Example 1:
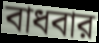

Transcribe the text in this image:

বাধবার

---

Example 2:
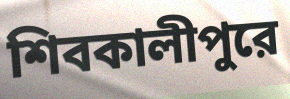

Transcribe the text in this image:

শিবকালীপুরে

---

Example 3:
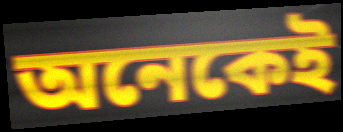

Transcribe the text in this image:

অনেকেই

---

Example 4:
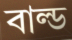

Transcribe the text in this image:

বাল্ড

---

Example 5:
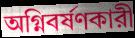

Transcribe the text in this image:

অগ্নিবর্ষণকারী